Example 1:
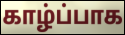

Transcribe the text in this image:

காழ்ப்பாக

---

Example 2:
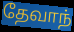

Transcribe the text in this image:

தேவாந்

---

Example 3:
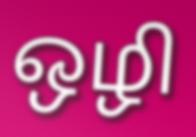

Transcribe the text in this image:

ஒழி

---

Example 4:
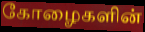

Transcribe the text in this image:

கோழைகளின்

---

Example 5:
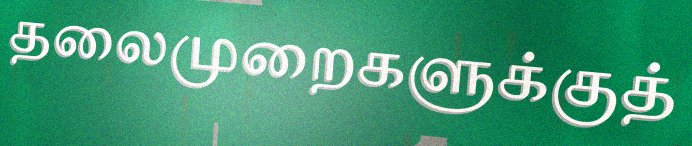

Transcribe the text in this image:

தலைமுறைகளுக்குத்